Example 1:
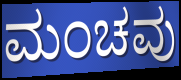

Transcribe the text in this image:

ಮಂಚವು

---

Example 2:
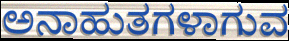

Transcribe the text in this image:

ಅನಾಹುತಗಳಾಗುವ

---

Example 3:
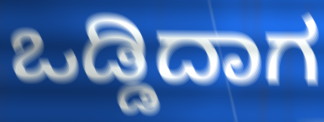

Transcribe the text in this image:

ಒಡ್ಡಿದಾಗ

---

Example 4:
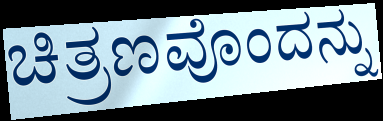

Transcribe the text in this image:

ಚಿತ್ರಣವೊಂದನ್ನು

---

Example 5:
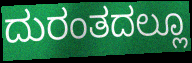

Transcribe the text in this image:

ದುರಂತದಲ್ಲೂ